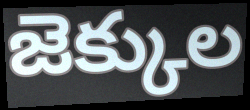
జెక్కుల